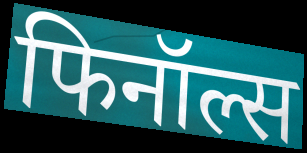
फिनॉल्स